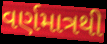
વર્ણમાત્રથી